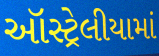
ઑસ્ટ્રેલીયામાં